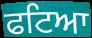
ਫਟਿਆ